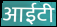
आईटी